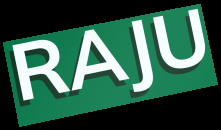
RAJU